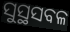
ସୁସ୍ଥସବଳ